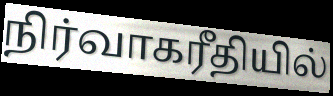
நிர்வாகரீதியில்